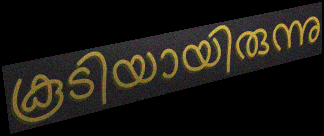
കൂടിയായിരുന്നു